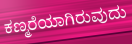
ಕಣ್ಮರೆಯಾಗಿರುವುದು